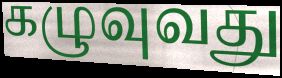
கழுவுவது